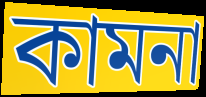
কামনা